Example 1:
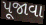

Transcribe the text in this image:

પૂજાવા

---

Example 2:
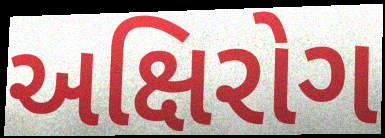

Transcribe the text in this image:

અક્ષિરોગ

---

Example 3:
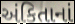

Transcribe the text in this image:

અંકિતાનાં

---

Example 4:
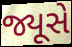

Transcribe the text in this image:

જ્યૂસે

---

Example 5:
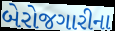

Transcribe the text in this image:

બેરોજગારીના